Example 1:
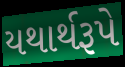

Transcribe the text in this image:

યથાર્થરૂપે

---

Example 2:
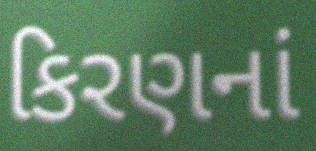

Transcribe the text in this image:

કિરણનાં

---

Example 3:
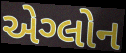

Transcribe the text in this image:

એગ્લોન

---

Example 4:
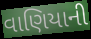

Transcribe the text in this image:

વાણિયાની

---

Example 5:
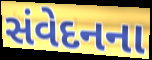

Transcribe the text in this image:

સંવેદનના